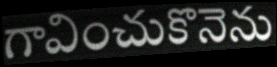
గావించుకొనెను